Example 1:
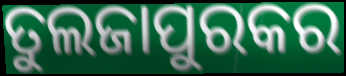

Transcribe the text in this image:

ତୁଲଜାପୁରକର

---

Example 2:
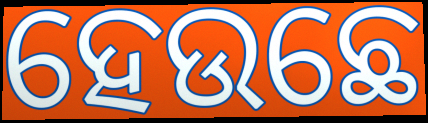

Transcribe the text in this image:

ହେଉଛେ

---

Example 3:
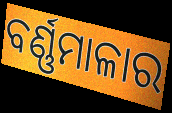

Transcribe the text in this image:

ବର୍ଣ୍ଣମାଳାର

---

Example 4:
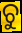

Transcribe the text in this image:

ଚୁ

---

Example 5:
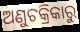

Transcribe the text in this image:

ଅଣୁଚକ୍ରିକାରୁ